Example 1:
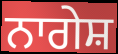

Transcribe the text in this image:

ਨਾਗੇਸ਼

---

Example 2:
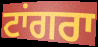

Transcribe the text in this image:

ਟਾਂਗਰਾ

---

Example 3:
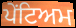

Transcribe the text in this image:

ਪੇਂਟਿਅਮ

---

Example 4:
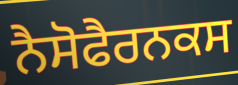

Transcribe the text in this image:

ਨੈਸੋਫੈਰਨਕਸ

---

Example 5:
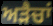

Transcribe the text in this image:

ਅੜੈਚਾਂ